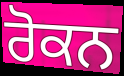
ਰੋਕਨ